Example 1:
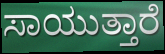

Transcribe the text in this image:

ಸಾಯುತ್ತಾರೆ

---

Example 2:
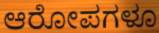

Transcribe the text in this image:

ಆರೋಪಗಳೂ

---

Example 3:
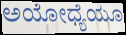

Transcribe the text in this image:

ಅಯೋಧ್ಯೆಯೂ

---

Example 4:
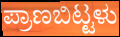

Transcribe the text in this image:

ಪ್ರಾಣಬಿಟ್ಟಳು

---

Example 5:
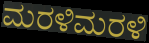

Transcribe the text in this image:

ಮರಳಿಮರಳಿ